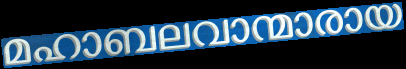
മഹാബലവാന്മാരായ